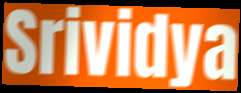
Srividya